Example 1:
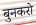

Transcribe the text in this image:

बुनकरो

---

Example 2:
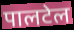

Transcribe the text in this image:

पालटेल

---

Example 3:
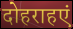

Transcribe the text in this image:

दोहराहएं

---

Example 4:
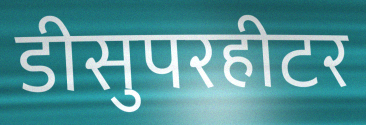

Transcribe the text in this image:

डीसुपरहीटर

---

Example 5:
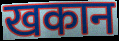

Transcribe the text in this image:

खकान